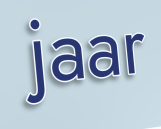
jaar